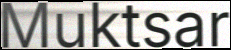
Muktsar